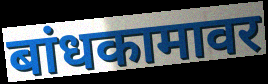
बांधकामावर